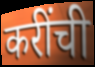
करींची